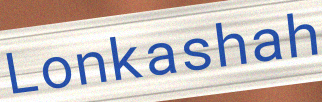
Lonkashah